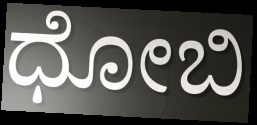
ಧೋಬಿ